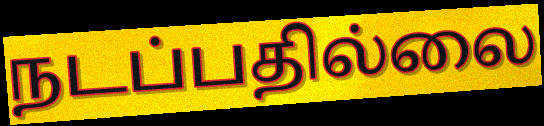
நடப்பதில்லை